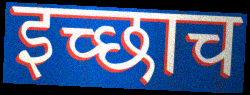
इच्छाच